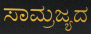
ಸಾಮ್ರಜ್ಯದ